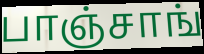
பாஞ்சாங்